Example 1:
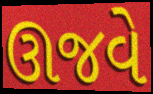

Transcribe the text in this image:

ઊજવે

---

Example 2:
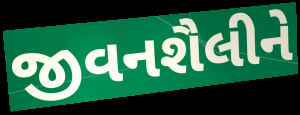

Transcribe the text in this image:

જીવનશૈલીને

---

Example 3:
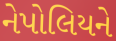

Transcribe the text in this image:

નેપોલિયને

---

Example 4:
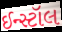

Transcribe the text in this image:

ઈન્સ્ટૉલ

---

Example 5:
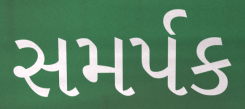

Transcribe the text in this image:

સમર્પક